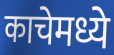
काचेमध्ये